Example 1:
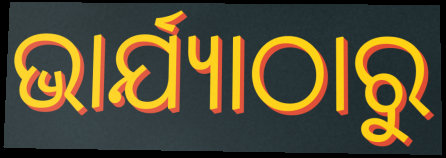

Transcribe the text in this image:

ଭାର୍ଯ୍ୟାଠାରୁ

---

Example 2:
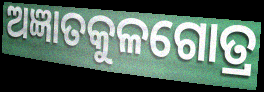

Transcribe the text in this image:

ଅଜ୍ଞାତକୁଳଗୋତ୍ର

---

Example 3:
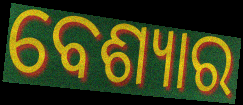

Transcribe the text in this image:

ବେଶ୍ୟାର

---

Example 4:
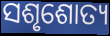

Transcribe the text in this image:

ସଶୃଶୋତ୍ୟ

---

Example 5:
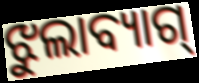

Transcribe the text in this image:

ଝୁଲାବ୍ୟାଗ୍